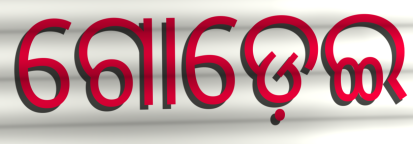
ଗୋଡ଼େଇ